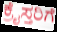
ಕ್ರೈಸ್ತರಿಗೆ